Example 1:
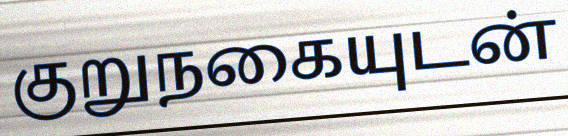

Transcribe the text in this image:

குறுநகையுடன்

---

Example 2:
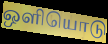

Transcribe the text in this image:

ஒளியொடு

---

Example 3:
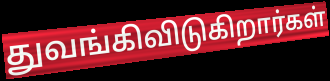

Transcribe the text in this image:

துவங்கிவிடுகிறார்கள்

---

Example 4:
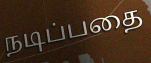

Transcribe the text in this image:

நடிப்பதை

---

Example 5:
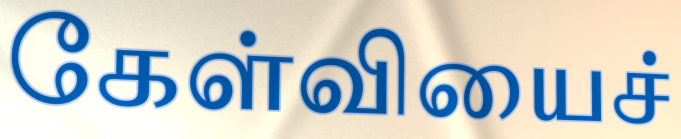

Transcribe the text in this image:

கேள்வியைச்